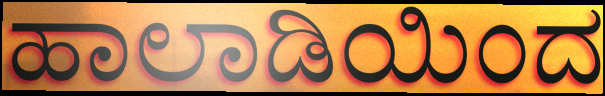
ಹಾಲಾಡಿಯಿಂದ